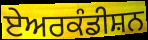
ਏਅਰਕੰਡੀਸ਼ਨ